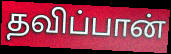
தவிப்பான்